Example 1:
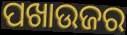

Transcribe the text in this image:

ପଖାଉଜର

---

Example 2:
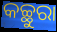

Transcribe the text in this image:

କଚ୍ଛୁରା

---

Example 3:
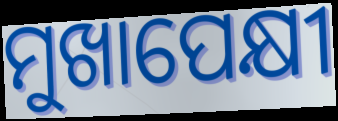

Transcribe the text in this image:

ମୁଖାପେକ୍ଷୀ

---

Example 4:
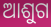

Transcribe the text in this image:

ଆଶୁଗ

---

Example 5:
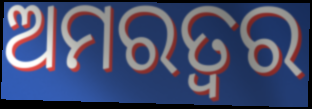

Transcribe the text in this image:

ଅମରତ୍ୱର